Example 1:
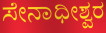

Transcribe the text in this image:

ಸೇನಾಧೀಶ್ವರ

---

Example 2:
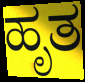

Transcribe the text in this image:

ಹೃತ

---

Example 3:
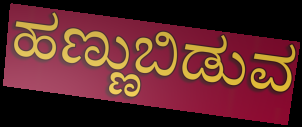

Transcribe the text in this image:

ಹಣ್ಣುಬಿಡುವ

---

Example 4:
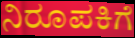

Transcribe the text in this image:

ನಿರೂಪಕಿಗೆ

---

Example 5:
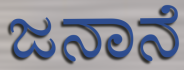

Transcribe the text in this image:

ಜನಾನೆ